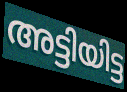
അട്ടിയിട്ട